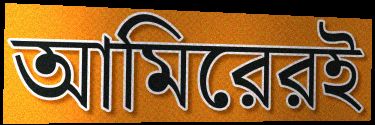
আমিরেরই